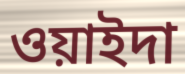
ওয়াইদা